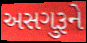
અસગુરૂને